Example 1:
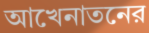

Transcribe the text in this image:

আখেনাতনের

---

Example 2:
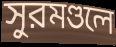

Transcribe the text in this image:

সুরমণ্ডলে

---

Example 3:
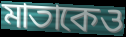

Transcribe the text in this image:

মাতাকেও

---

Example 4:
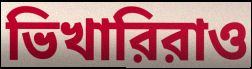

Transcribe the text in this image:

ভিখারিরাও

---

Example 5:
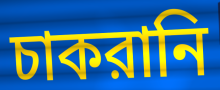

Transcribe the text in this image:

চাকরানি